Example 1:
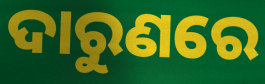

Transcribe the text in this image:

ଦାରୁଣରେ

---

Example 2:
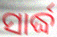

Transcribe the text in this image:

ସାର୍ଦ୍ଧ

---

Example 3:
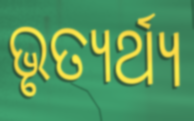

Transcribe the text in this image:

ଭୃତ୍ୟର୍ଥ୍ୟ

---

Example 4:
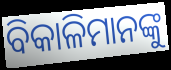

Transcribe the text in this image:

ବିକାଳିମାନଙ୍କୁ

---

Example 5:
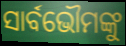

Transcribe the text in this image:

ସାର୍ବଭୌମଙ୍କୁ